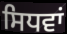
ਸਿਧਵਾਂ